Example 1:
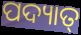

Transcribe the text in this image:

ପଦ୍ୟାତ୍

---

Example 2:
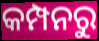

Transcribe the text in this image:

କମ୍ପନରୁ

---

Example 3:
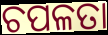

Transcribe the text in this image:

ଚପଳତା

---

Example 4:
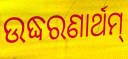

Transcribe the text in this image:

ଉଦ୍ଧରଣାର୍ଥମ୍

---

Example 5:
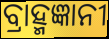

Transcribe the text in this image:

ବ୍ରାହ୍ମଜ୍ଞାନୀ